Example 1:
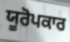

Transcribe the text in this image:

ਯੂਰੋਪਕਾਰ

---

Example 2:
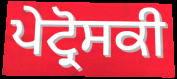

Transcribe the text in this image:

ਪੇਟ੍ਰੋਸਕੀ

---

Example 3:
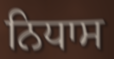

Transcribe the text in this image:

ਨਿਧਾਸ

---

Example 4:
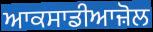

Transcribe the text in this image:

ਆਕਸਾਡੀਆਜ਼ੋਲ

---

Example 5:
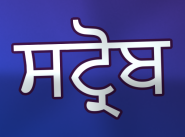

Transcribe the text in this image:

ਸਟ੍ਰੋਬ